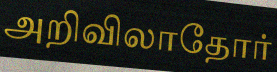
அறிவிலாதோர்